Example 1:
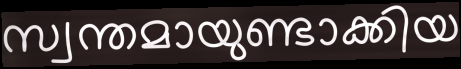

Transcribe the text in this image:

സ്വന്തമായുണ്ടാക്കിയ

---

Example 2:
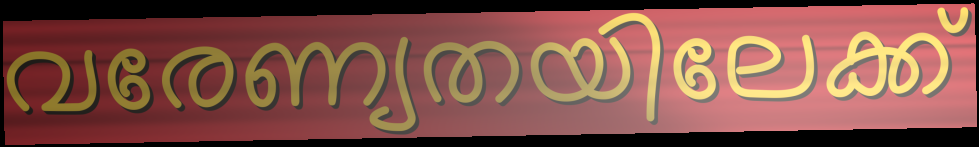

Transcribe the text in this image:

വരേണ്യതയിലേക്ക്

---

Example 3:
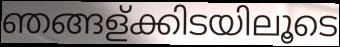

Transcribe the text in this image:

ഞങ്ങള്ക്കിടയിലൂടെ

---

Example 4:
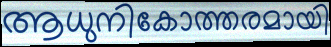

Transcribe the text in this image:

ആധുനികോത്തരമായി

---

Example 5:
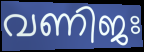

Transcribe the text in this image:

വണിജഃ